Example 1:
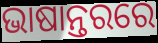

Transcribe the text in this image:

ଭାଷାନ୍ତରରେ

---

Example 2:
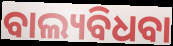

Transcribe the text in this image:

ବାଲ୍ୟବିଧବା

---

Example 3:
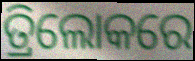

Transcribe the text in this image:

ତ୍ରିଲୋକରେ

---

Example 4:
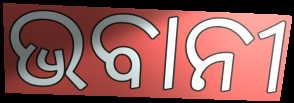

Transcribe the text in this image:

ଭବାନୀ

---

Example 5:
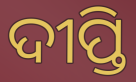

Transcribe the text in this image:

ଦୀପ୍ତି